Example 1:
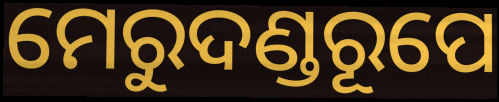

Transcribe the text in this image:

ମେରୁଦଣ୍ଡରୂପେ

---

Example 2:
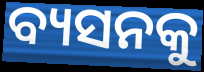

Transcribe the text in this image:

ବ୍ୟସନକୁ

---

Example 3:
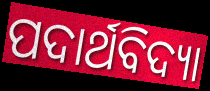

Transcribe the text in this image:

ପଦାର୍ଥବିଦ୍ୟା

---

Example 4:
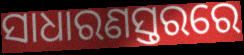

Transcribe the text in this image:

ସାଧାରଣସ୍ତରରେ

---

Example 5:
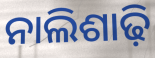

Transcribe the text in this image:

ନାଲିଶାଢ଼ି